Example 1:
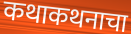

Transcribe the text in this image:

कथाकथनाचा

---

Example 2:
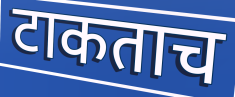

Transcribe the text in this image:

टाकताच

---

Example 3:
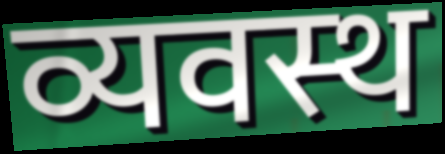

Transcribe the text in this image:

व्यवस्थ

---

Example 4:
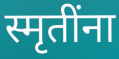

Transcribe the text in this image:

स्मृतींना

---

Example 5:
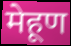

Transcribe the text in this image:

मेहूण